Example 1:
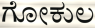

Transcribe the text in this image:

ಗೋಕುಲ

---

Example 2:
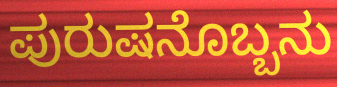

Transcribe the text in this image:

ಪುರುಷನೊಬ್ಬನು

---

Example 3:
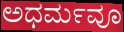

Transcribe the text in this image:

ಅಧರ್ಮವೂ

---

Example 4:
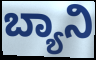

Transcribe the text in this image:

ಬ್ಯಾನಿ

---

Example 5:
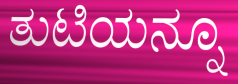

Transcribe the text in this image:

ತುಟಿಯನ್ನೂ